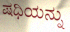
ಷಧಿಯನ್ನು